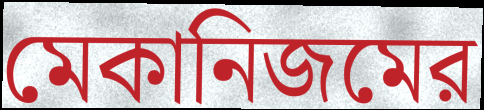
মেকানিজমের